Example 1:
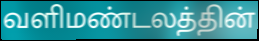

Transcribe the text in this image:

வளிமண்டலத்தின்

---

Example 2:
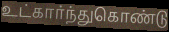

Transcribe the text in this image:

உட்கார்ந்துகொண்டு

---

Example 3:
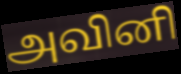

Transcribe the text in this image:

அவினி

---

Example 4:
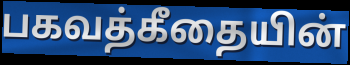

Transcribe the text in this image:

பகவத்கீதையின்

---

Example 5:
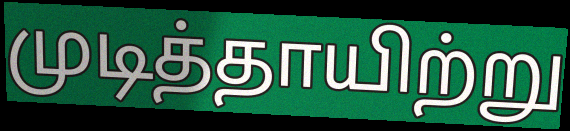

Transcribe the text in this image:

முடித்தாயிற்று